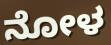
ನೋಳ